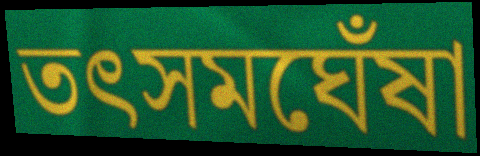
তৎসমঘেঁষা